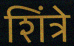
शिंत्रे